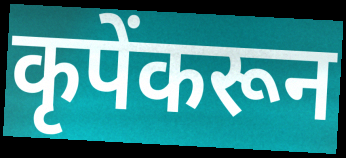
कृपेंकरून